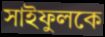
সাইফুলকে